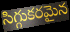
సిగ్గుకరమైన